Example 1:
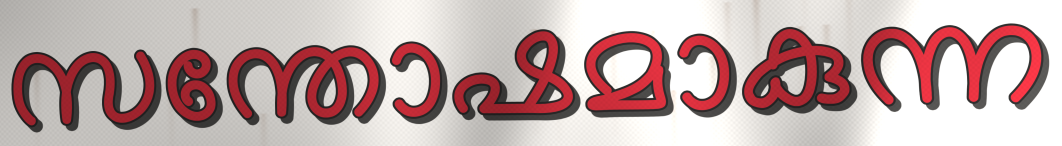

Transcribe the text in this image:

സന്തോഷമാകുന്ന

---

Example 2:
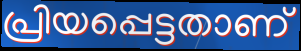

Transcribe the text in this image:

പ്രിയപ്പെട്ടതാണ്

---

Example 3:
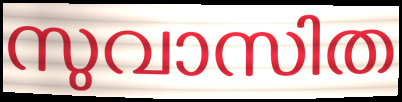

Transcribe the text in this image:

സുവാസിത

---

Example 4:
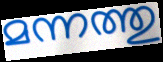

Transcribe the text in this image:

മന്നത്തു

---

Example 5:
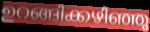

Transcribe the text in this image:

ഉറങ്ങിക്കഴിഞ്ഞു